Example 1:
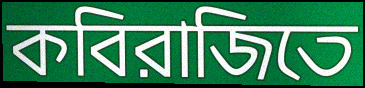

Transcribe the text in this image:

কবিরাজিতে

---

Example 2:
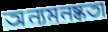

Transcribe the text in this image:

অন্যমনষ্কতা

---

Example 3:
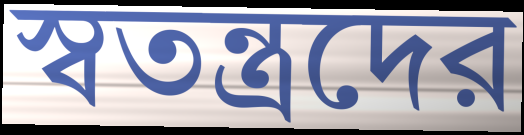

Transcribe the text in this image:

স্বতন্ত্রদের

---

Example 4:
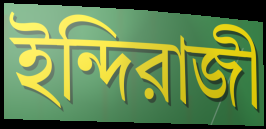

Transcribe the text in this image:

ইন্দিরাজী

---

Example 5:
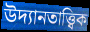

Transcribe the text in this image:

উদ্যানতাত্ত্বিক